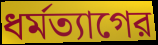
ধর্মত্যাগের